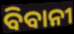
ବିବାନୀ